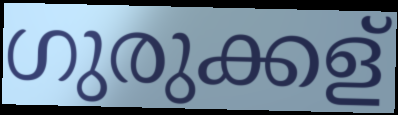
ഗുരുക്കള്